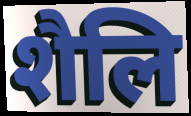
शैलि